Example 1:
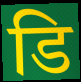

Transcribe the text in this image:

डि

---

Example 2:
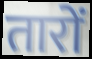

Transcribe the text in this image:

तारों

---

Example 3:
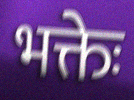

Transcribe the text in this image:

भक्तेः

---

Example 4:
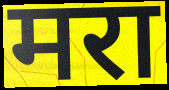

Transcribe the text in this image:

मरा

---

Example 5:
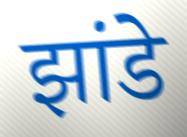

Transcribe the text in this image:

झांडे